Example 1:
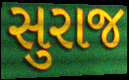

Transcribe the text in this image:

સુરાજ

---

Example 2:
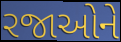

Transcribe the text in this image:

રજાઓને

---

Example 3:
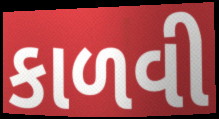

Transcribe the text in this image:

કાળવી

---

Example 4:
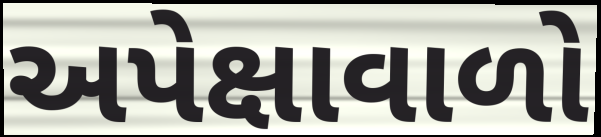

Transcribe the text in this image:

અપેક્ષાવાળો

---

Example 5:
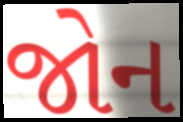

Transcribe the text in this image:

જોન